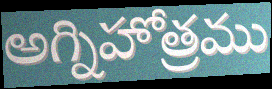
అగ్నిహోత్రము